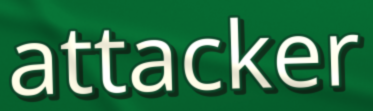
attacker